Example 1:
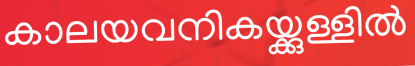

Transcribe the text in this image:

കാലയവനികയ്ക്കുള്ളിൽ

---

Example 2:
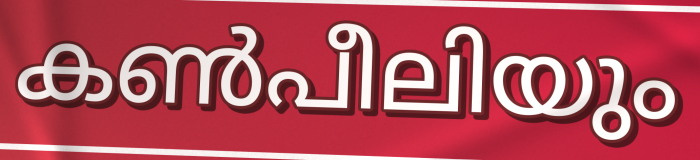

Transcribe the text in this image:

കൺപീലിയും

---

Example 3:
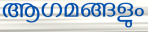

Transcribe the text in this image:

ആഗമങ്ങളും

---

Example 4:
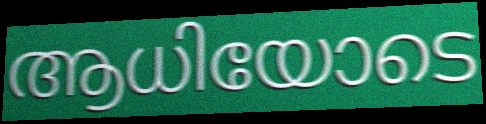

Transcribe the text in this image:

ആധിയോടെ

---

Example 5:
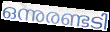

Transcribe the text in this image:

ഒന്നുരണ്ടടി